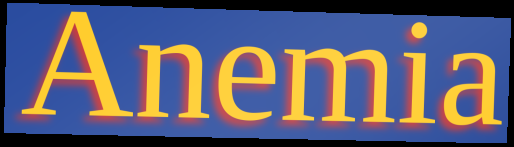
Anemia